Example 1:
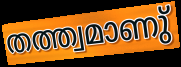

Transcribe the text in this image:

തത്ത്വമാണു്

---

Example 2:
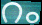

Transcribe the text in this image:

റം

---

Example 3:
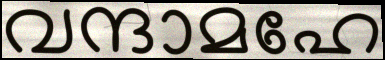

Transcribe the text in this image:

വന്ദാമഹേ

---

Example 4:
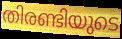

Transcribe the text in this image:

തിരണ്ടിയുടെ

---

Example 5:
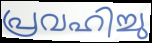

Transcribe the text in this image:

പ്രവഹിച്ചു